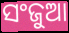
ସଂଜୁଆ